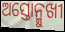
ଅସ୍ତୋନ୍ମୁଖୀ